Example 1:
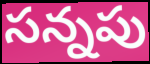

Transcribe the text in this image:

సన్నపు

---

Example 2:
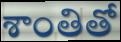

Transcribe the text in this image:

శాంతితో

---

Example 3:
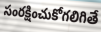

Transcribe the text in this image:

సంరక్షించుకోగలిగితే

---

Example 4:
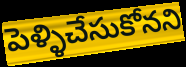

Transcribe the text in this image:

పెళ్ళిచేసుకోనని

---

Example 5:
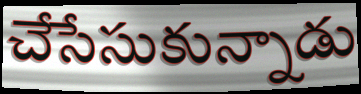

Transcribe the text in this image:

చేసేసుకున్నాడు